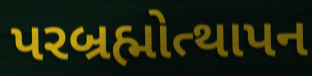
પરબ્રહ્મોત્થાપન